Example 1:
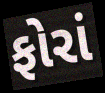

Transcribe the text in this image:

ફોરાં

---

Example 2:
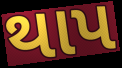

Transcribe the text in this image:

થાપ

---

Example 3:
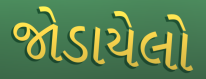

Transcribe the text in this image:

જોડાયેલો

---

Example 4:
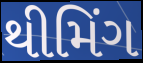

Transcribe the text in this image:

થીમિંગ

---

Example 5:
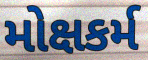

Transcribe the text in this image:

મોક્ષકર્મ